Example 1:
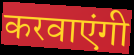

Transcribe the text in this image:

करवाएंगी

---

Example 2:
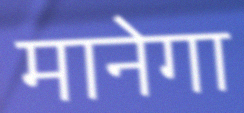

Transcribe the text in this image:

मानेगा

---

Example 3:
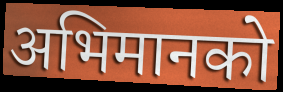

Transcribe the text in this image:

अभिमानको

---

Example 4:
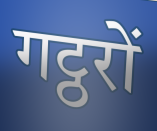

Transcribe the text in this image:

गट्ठरों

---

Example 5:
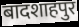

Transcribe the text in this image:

बादशाहपुर